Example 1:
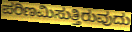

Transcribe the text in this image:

ಪರಿಣಮಿಸುತ್ತಿರುವುದು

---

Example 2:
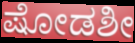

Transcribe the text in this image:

ಷೋಡಶೀ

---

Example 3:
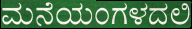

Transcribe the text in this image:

ಮನೆಯಂಗಳದಲಿ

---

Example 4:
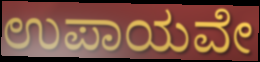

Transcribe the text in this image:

ಉಪಾಯವೇ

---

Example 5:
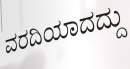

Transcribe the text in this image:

ವರದಿಯಾದದ್ದು